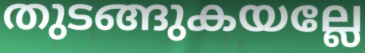
തുടങ്ങുകയല്ലേ